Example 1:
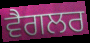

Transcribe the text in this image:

ਵੈਗਲਰ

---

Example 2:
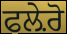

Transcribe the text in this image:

ਫਲ਼ੇਰੋ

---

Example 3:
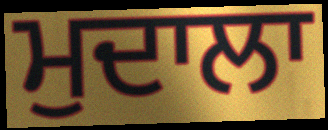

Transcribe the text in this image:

ਮੁਦਾਲਾ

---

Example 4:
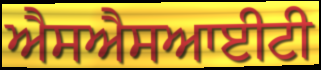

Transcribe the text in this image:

ਐਸਐਸਆਈਟੀ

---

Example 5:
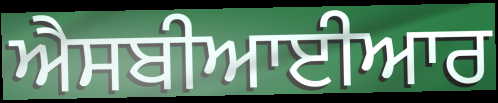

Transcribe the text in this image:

ਐਸਬੀਆਈਆਰ